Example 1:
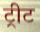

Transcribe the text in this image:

ट्रीट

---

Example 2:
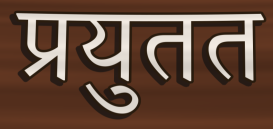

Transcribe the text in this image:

प्रयुतत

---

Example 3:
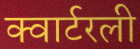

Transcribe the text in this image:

क्वार्टरली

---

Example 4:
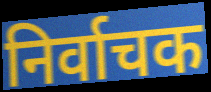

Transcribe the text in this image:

निर्वाचक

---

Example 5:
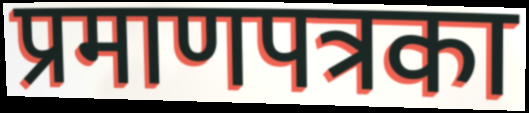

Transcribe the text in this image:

प्रमाणपत्रका